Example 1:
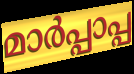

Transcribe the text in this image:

മാർപ്പാപ്പ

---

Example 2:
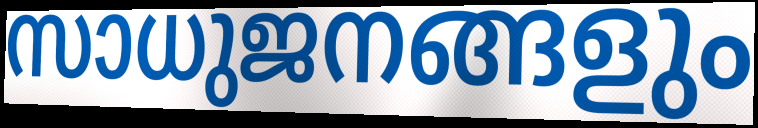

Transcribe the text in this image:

സാധുജനങ്ങളും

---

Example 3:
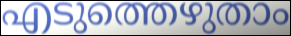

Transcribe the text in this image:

എടുത്തെഴുതാം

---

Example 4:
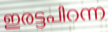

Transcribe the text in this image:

ഇരട്ടപിറന്ന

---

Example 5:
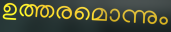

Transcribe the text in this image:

ഉത്തരമൊന്നും